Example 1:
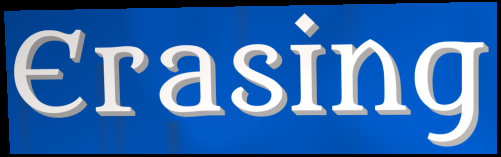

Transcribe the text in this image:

Erasing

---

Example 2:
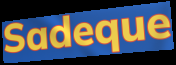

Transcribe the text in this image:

Sadeque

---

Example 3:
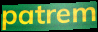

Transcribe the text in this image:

patrem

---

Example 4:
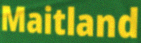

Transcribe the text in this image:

Maitland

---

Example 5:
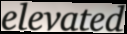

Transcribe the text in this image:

elevated